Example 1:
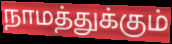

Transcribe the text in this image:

நாமத்துக்கும்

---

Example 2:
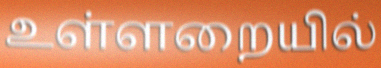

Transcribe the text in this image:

உள்ளறையில்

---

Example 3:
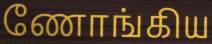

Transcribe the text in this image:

ணோங்கிய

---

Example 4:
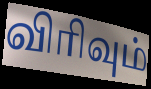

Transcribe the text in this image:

விரிவும்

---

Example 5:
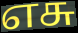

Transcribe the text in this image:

எசு